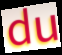
du